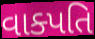
વાક્પતિ